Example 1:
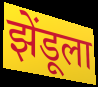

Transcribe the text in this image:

झेंडूला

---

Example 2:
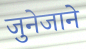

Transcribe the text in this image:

जुनेजाने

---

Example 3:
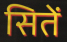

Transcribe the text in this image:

सितें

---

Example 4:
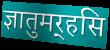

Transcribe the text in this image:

ज्ञातुमर्हसि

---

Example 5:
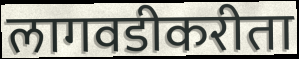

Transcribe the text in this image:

लागवडीकरीता